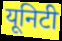
यूनिटी